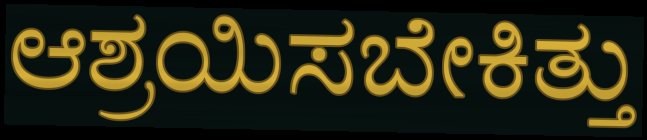
ಆಶ್ರಯಿಸಬೇಕಿತ್ತು